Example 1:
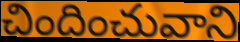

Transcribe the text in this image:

చిందించువాని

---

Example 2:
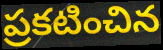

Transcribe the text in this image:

ప్రకటించిన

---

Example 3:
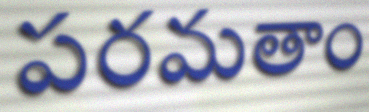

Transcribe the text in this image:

పరమతాం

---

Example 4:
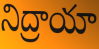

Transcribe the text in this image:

నిద్రాయా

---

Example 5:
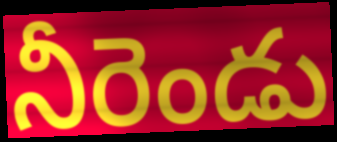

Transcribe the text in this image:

నీరెండు